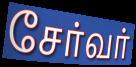
சேர்வர்